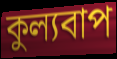
কুল্যবাপ